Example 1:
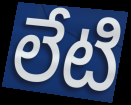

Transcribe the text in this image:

లేటి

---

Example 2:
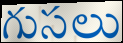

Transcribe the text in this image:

గుసలు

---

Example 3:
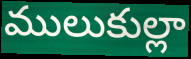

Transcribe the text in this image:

ములుకుల్లా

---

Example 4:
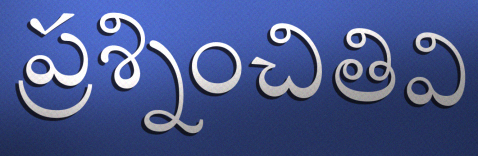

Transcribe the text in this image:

ప్రశ్నించితివి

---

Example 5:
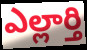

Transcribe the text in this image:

ఎల్లార్తి